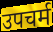
उपचर्म